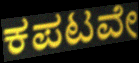
ಕಪಟವೇ